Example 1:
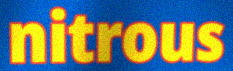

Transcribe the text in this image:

nitrous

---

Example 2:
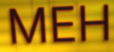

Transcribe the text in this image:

MEH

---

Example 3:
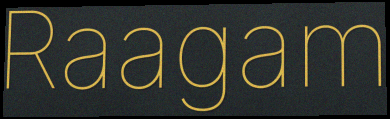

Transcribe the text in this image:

Raagam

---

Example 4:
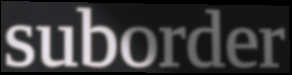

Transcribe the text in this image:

suborder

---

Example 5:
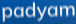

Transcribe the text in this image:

padyam